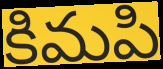
కిమపి